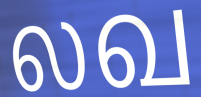
லவ